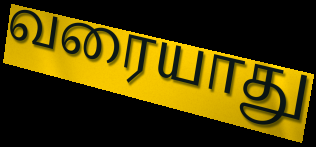
வரையாது